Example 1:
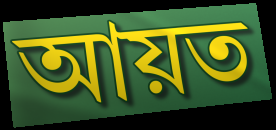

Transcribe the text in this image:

আয়ত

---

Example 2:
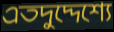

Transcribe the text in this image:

এতদুদ্দেশ্যে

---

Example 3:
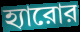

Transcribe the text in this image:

হ্যারোর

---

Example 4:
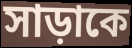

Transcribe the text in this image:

সাড়াকে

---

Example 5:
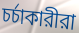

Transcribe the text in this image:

চর্চাকারীরা